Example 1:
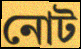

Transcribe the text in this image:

নোট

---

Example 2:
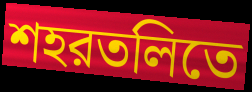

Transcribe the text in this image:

শহরতলিতে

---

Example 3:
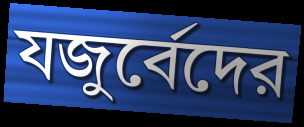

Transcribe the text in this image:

যজুর্বেদের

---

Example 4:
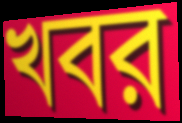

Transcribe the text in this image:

খবর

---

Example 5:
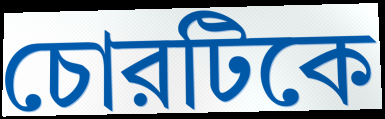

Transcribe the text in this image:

চোরটিকে